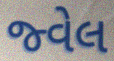
જ્વેલ